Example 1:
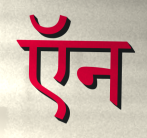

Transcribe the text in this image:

ऍन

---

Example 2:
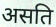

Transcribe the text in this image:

असति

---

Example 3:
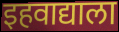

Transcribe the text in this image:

इहवाद्याला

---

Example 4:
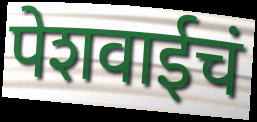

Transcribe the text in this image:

पेशवाईचं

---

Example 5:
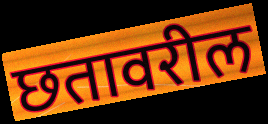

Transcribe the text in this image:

छतावरील